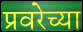
प्रवरेच्या